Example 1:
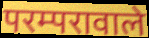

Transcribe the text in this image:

परम्परावाले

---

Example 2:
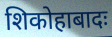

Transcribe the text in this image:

शिकोहाबादः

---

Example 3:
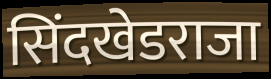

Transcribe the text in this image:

सिंदखेडराजा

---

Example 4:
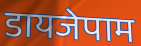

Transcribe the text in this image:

डायजेपाम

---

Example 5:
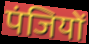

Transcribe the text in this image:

पंजियों